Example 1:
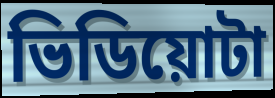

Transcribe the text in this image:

ভিডিয়োটা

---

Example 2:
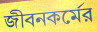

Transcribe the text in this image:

জীবনকর্মের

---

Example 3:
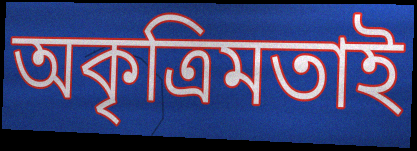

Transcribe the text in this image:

অকৃত্রিমতাই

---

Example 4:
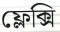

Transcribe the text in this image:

ফ্লেক্সি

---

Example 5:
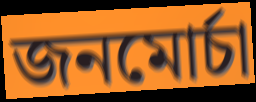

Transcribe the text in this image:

জনমোর্চা